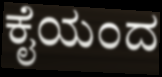
ಕೈಯಂದ